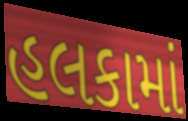
હલકામાં